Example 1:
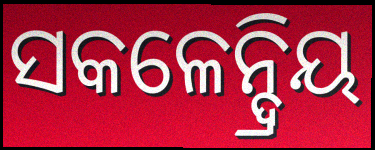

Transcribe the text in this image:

ସକଳେନ୍ଦ୍ରିୟ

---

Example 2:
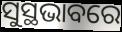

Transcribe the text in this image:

ସୁସ୍ଥଭାବରେ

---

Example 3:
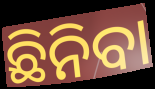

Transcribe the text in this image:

ଛିନିବା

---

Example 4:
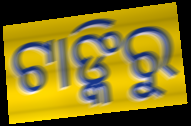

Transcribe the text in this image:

ଟାଙ୍କିରୁ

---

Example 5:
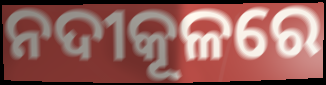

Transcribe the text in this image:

ନଦୀକୂଳରେ